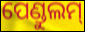
ପେଣ୍ଡୁଲମ୍